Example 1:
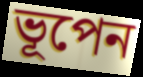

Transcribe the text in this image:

ভূপেন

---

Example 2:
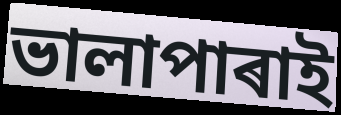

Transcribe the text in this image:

ভালাপাৰাই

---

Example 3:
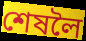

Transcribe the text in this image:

শেষলৈ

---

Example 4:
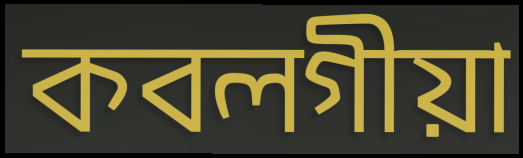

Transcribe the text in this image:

কবলগীয়া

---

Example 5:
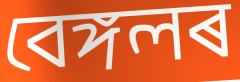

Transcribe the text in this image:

বেঙ্গলৰ